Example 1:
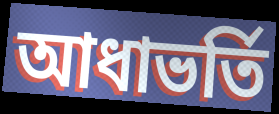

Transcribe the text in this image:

আধাভর্তি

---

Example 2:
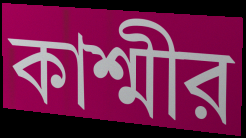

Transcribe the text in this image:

কাশ্মীর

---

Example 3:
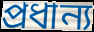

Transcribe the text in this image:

প্রধান্য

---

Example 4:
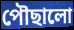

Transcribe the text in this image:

পৌছালো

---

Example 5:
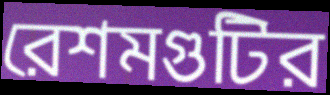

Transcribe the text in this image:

রেশমগুটির